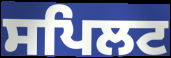
ਸਪਿਲਟ